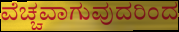
ವೆಚ್ಚವಾಗುವುದರಿಂದ